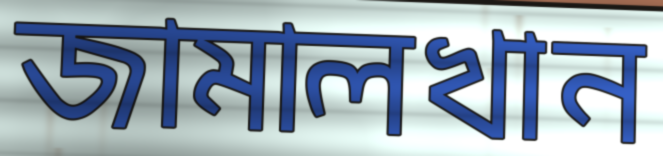
জামালখান